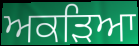
ਅਕੜਿਆ